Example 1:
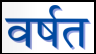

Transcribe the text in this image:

वर्षत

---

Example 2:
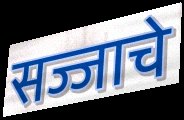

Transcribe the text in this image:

सज्जाचे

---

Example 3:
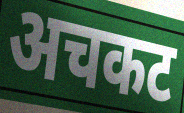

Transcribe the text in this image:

अचकट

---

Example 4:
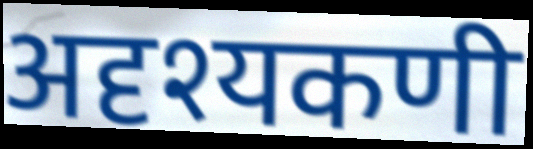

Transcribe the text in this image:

अदृश्यकणी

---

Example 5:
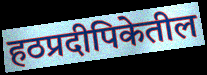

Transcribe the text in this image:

हठप्रदीपिकेतील